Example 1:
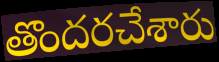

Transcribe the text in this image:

తొందరచేశారు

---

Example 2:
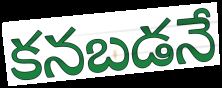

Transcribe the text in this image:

కనబడనే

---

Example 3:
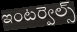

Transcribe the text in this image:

ఇంటర్వెల్స్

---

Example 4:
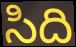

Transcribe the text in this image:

సిది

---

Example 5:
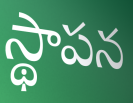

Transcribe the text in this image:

స్థాపన